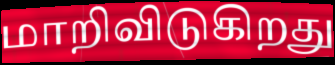
மாறிவிடுகிறது